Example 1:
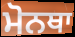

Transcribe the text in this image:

ਮੋਨਥਾ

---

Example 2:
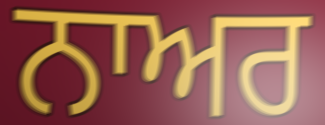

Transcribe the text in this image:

ਨਾਅਰ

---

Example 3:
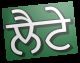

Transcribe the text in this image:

ਲੈਟੇ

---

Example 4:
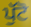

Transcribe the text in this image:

ਪੁੱਟੋ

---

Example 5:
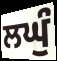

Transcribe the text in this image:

ਲਘੁੰ